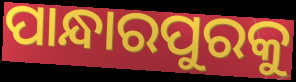
ପାନ୍ଧାରପୁରକୁ